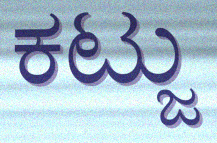
ಕಟ್ಜು